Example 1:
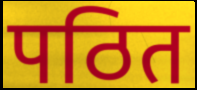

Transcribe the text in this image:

पठित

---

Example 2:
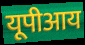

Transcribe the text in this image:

यूपीआय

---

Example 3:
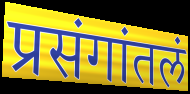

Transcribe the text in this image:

प्रसंगांतलं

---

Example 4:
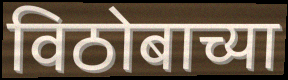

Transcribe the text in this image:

विठोबाच्या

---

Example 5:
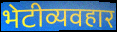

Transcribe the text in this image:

भेटीव्यवहार